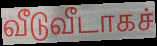
வீடுவீடாகச்